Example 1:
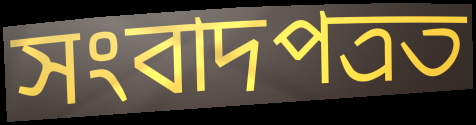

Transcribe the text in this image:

সংবাদপত্ৰত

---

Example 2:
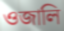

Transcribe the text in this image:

ওজালি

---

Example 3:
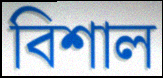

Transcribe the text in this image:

বিশাল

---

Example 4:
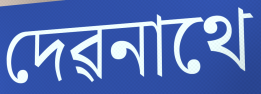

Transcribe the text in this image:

দেৱনাথে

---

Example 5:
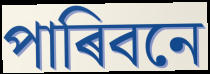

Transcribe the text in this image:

পাৰিবনে